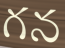
గన